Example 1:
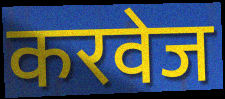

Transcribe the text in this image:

करवेज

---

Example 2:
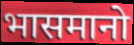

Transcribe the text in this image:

भासमानो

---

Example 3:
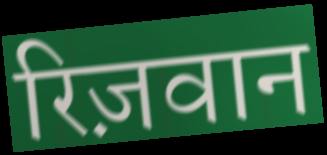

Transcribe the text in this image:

रिज़वान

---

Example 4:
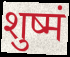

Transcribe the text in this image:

शुष्मं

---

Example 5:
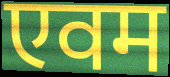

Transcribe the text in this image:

एवम